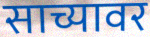
साच्यावर